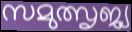
സമുത്സൃജ്യ